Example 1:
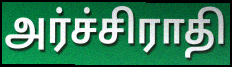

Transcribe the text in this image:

அர்ச்சிராதி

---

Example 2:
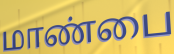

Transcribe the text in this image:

மாண்பை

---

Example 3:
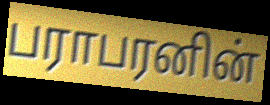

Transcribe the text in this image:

பராபரனின்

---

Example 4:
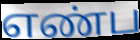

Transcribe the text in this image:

எண்ப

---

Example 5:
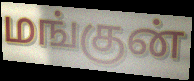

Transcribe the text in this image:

மங்குன்